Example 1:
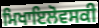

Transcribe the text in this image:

ਮਿਖਾਇਲੋਵਸਕੀ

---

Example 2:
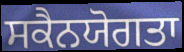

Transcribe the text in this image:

ਸਕੈਨਯੋਗਤਾ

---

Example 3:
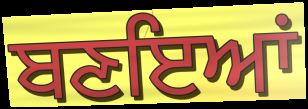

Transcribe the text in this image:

ਬਣਇਆਂ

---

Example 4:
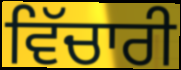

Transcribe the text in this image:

ਵਿੱਚਾਰੀ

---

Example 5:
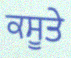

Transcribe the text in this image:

ਕਸੂਤੇ